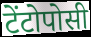
टेंटोपोसी